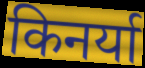
किनर्या